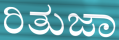
ರಿತುಜಾ